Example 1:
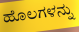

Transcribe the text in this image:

ಹೊಲಗಳನ್ನು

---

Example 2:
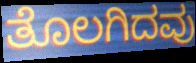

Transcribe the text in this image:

ತೊಲಗಿದವು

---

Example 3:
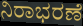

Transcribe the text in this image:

ನಿರಾಭರಣೆ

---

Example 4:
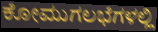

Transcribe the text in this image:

ಕೋಮುಗಲಭೆಗಳಲ್ಲಿ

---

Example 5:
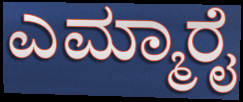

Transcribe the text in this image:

ಎಮ್ಮಾರೈ